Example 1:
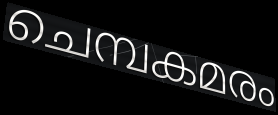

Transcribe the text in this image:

ചെമ്പകമരം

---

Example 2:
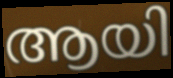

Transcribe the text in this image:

ആയി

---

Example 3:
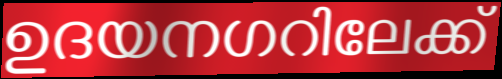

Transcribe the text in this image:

ഉദയനഗറിലേക്ക്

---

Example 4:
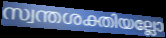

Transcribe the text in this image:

സ്വന്തശക്തിയല്ലോ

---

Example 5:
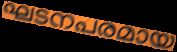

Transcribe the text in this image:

ഘടനപരമായ